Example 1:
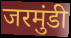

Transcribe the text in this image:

जरमुंडी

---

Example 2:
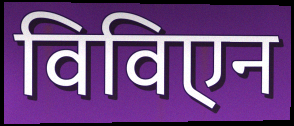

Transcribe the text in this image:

विविएन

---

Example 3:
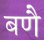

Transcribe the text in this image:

बणै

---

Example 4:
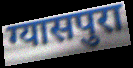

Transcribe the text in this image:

ग्यासपुरा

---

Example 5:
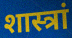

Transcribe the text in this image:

शास्त्रां